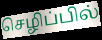
செழிப்பில்